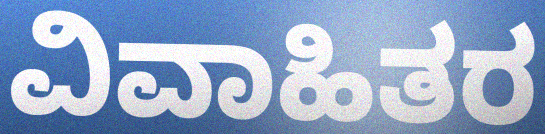
ವಿವಾಹಿತರ